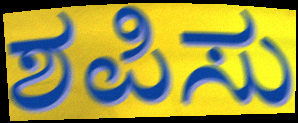
ಶಪಿಸು